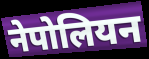
नेपोलियन